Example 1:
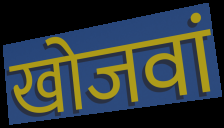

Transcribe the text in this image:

खोजवां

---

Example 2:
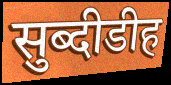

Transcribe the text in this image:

सुब्दीडीह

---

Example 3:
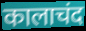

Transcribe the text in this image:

कालाचंद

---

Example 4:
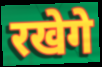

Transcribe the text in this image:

रखेगे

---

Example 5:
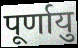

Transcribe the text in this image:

पूर्णायु